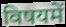
विषयमें